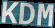
KDM